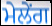
ਮੇਲੇਂਗ